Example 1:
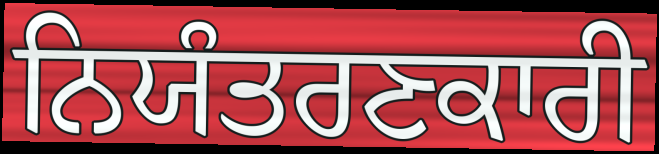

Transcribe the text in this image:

ਨਿਯੰਤਰਣਕਾਰੀ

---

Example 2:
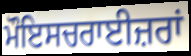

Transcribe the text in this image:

ਮੌਇਸਚਰਾਈਜ਼ਰਾਂ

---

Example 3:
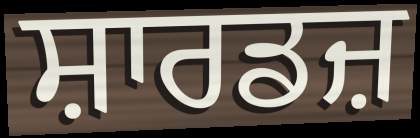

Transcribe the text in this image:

ਸ਼ਾਰਡਜ਼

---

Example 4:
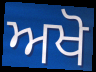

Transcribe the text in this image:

ਅਖੋ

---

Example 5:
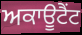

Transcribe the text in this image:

ਅਕਾਊਟੈਂਟ